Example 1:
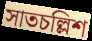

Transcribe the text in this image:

সাতচল্লিশ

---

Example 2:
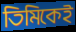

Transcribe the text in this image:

তিমিকেই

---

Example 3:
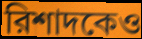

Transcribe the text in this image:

রিশাদকেও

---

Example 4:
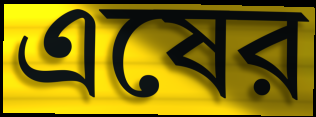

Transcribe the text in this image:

এষের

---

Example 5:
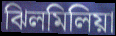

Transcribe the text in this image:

ঝিলমিলিয়া